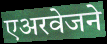
एअरवेजने